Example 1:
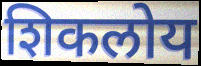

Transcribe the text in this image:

शिकलोय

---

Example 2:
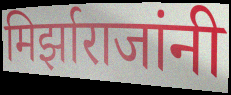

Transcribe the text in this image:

मिर्झाराजांनी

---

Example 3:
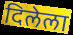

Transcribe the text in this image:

दिलेला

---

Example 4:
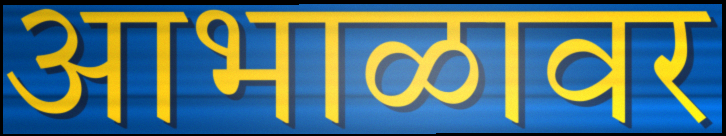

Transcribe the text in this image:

आभाळावर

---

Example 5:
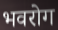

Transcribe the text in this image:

भवरोग